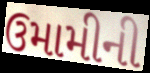
ઉમામીની